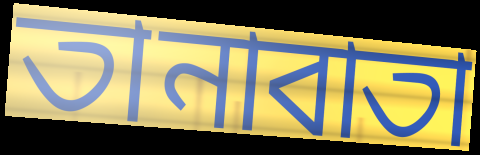
তানাবাতা